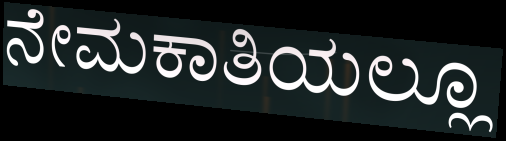
ನೇಮಕಾತಿಯಲ್ಲೂ